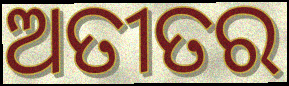
ଅତୀତର